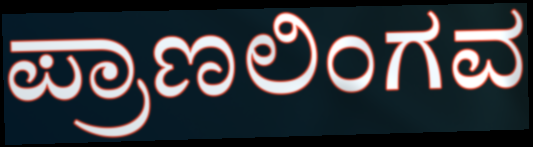
ಪ್ರಾಣಲಿಂಗವ